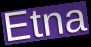
Etna